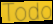
Todo